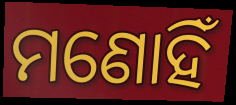
ମଣୋହିଁ